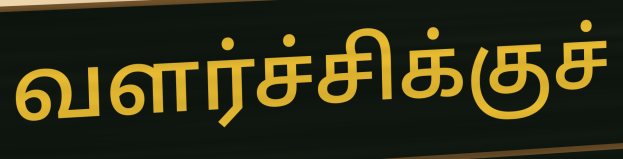
வளர்ச்சிக்குச்